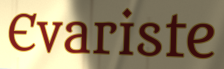
Evariste